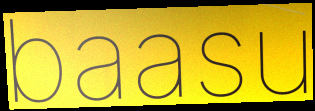
baasu